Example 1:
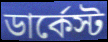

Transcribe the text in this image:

ডার্কেস্ট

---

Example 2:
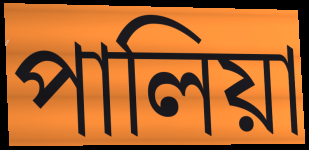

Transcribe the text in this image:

পালিয়া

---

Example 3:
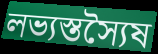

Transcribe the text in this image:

লভ্যস্তস্যৈষ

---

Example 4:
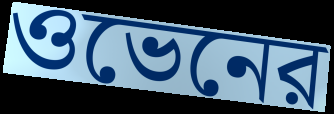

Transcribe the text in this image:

ওভেনের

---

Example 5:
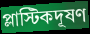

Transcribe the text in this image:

প্লাস্টিকদূষণ